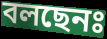
বলছেনঃ